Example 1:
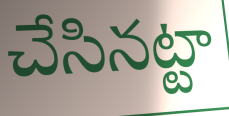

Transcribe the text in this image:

చేసినట్టా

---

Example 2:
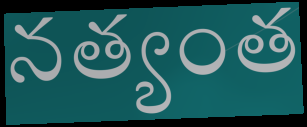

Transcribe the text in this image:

నత్యంత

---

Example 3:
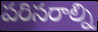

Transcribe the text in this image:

పరిసరాల్ని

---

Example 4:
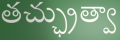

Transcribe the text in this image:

తచ్ఛ్రుత్వా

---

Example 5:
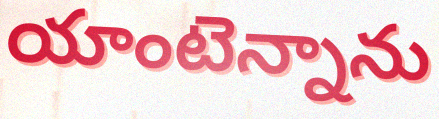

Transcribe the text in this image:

యాంటెన్నాను